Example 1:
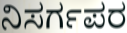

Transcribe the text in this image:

ನಿಸರ್ಗಪರ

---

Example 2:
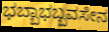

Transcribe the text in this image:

ಭಬ್ಬಾಭಬ್ಬವಸೇನ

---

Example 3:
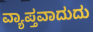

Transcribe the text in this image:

ವ್ಯಾಪ್ತವಾದುದು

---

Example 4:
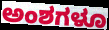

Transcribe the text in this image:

ಅಂಶಗಳೂ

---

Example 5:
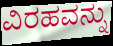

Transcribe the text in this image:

ವಿರಹವನ್ನು